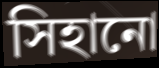
সিহানো